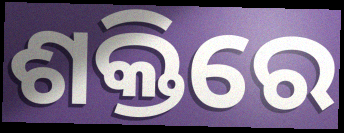
ଶକ୍ତିରେ